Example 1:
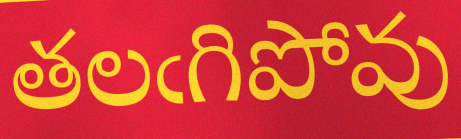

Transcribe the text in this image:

తలఁగిపోవు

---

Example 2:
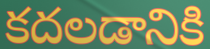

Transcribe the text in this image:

కదలడానికి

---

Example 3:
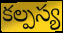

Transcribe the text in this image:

కల్పస్య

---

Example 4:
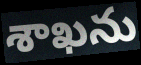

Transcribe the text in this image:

శాఖను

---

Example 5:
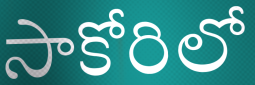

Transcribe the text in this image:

సాకోరిలో